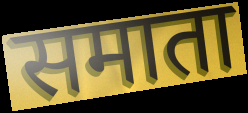
समाता